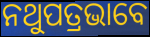
ନଥୁପତ୍ରଭାବେ